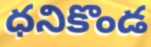
ధనికొండ